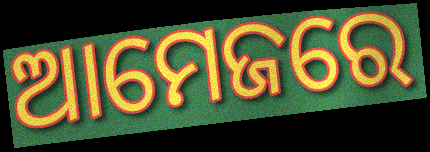
ଆମେଜରେ